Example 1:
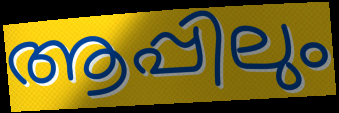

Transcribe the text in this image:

ആപ്പിലും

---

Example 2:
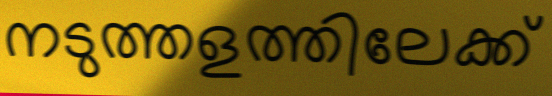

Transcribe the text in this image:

നടുത്തളത്തിലേക്ക്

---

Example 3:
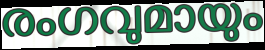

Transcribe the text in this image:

രംഗവുമായും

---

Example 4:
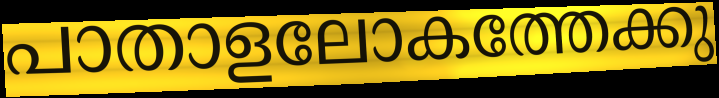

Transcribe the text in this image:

പാതാളലോകത്തേക്കു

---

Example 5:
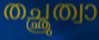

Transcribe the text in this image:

തച്ഛ്രുത്വാ